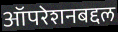
ऑपरेशनबद्दल